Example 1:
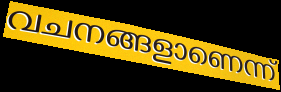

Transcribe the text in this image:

വചനങ്ങളാണെന്ന്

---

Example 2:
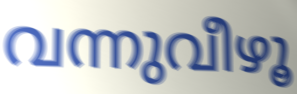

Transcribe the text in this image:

വന്നുവീഴൂ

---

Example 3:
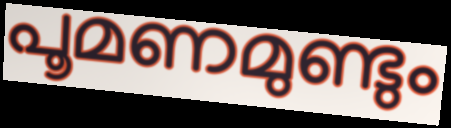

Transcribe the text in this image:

പൂമണമുണ്ടും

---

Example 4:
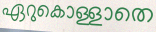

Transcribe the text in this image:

ഏറുകൊള്ളാതെ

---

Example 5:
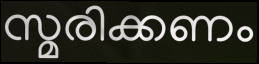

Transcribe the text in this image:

സ്മരിക്കണം